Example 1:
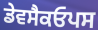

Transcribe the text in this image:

ਡੇਵਸੈਕਓਪਸ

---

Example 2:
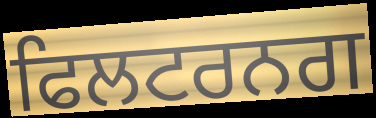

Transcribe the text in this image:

ਫਿਲਟਰਨਗ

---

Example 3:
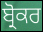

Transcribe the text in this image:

ਬ੍ਰੋਕਰ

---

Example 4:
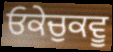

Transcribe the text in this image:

ਓਕੇਚੁਕਵੂ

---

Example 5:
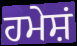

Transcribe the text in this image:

ਹਮੇਸ਼ਂ